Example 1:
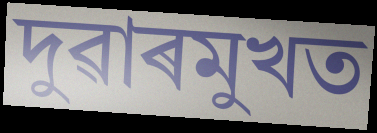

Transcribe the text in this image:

দুৱাৰমুখত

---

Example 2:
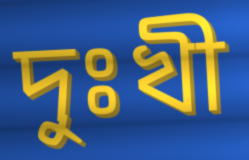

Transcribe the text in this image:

দুঃখী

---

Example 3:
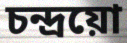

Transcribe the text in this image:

চন্দ্ৰয়ো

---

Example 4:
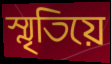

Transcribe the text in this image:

স্মৃতিয়ে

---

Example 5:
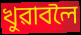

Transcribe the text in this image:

খুৱাবলৈ